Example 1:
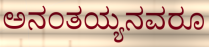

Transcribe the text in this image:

ಅನಂತಯ್ಯನವರೂ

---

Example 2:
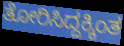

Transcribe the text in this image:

ತೋರಿಸಿದ್ದಕ್ಕಿಂತ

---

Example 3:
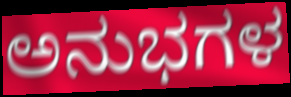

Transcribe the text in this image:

ಅನುಭಗಳ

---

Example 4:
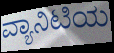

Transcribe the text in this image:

ವ್ಯಾನಿಟಿಯ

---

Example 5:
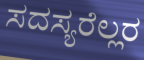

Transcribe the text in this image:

ಸದಸ್ಯರೆಲ್ಲರ